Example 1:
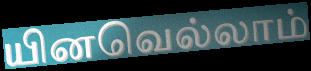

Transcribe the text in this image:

யினவெல்லாம்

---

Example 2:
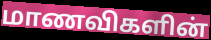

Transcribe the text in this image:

மாணவிகளின்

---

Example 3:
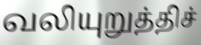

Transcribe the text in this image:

வலியுறுத்திச்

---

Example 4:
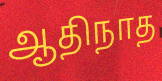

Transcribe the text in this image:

ஆதிநாத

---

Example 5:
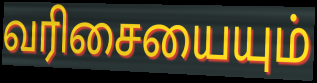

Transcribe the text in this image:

வரிசையையும்